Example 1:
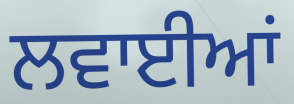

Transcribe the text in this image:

ਲਵਾਈਆਂ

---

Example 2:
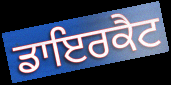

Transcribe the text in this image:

ਡਾਇਰਕੈਟ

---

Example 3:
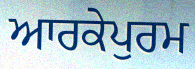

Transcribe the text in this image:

ਆਰਕੇਪੁਰਮ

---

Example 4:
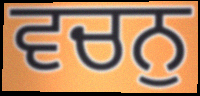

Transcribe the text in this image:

ਵਚਨੁ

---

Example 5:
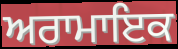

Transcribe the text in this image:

ਅਰਾਮਾਇਕ